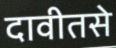
दावीतसे